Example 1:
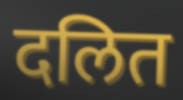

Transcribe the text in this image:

दलित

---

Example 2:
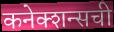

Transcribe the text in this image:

कनेक्शन्सची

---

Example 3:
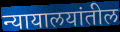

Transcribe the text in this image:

न्यायालयांतील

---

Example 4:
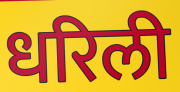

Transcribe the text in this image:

धरिली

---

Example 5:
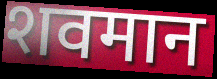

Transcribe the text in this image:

शवमान